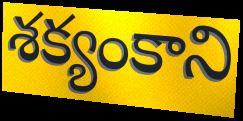
శక్యంకాని